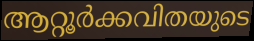
ആറ്റൂർക്കവിതയുടെ